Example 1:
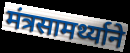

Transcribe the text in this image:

मंत्रसामर्थ्याने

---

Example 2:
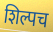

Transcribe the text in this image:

शिल्पच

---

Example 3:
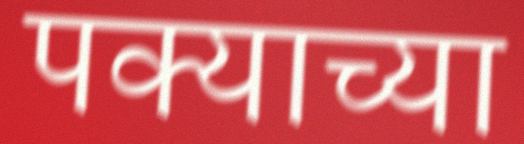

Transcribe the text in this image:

पक्याच्या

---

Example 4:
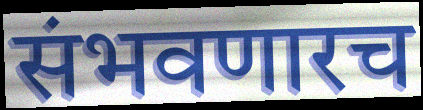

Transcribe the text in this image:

संभवणारच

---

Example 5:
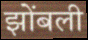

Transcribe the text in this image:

झोंबली